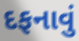
દફનાવું